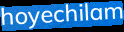
hoyechilam